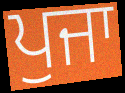
ਪੁਜਾ